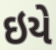
ઇયે